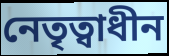
নেতৃত্বাধীন